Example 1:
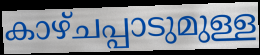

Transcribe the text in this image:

കാഴ്ചപ്പാടുമുള്ള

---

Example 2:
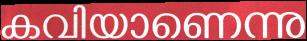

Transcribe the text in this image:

കവിയാണെന്നു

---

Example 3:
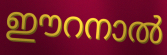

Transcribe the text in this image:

ഈറനാൽ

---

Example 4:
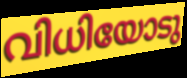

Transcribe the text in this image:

വിധിയോടു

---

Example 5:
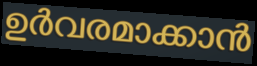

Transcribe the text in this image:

ഉർവരമാക്കാൻ